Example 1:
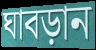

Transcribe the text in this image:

ঘাবড়ান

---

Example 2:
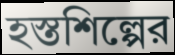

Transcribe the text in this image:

হস্তশিল্পের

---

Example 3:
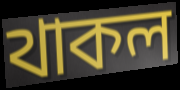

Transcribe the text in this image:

থাকল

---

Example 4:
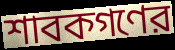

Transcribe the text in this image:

শাবকগণের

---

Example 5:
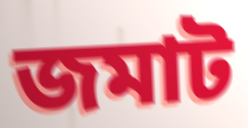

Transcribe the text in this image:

জমাট